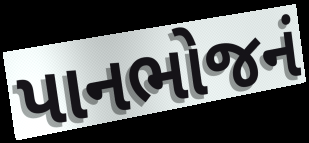
પાનભોજનં